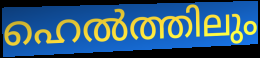
ഹെൽത്തിലും